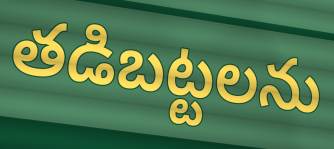
తడిబట్టలను